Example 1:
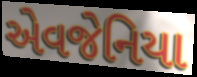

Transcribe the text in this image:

એવજેનિયા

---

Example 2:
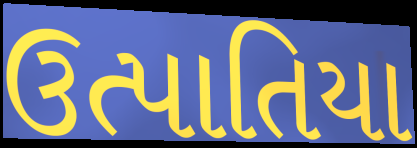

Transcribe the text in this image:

ઉત્પાતિયા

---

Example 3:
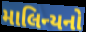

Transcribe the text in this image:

માલિન્યનો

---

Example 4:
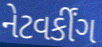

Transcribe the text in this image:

નેટવર્કીંગ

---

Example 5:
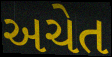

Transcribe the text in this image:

અચેત